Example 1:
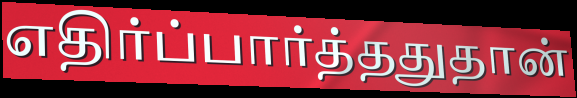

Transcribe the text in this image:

எதிர்ப்பார்த்ததுதான்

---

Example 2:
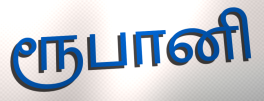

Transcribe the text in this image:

ரூபானி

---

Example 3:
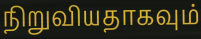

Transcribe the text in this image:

நிறுவியதாகவும்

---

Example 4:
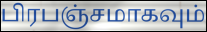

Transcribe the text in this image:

பிரபஞ்சமாகவும்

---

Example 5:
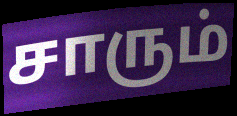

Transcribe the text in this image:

சாரும்